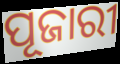
ପୂଜାରୀ